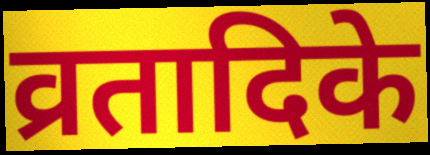
व्रतादिके